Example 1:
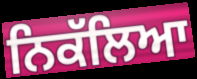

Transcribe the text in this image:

ਨਿਕੱਲਿਆ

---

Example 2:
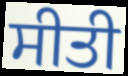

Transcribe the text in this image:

ਸੀਤੀ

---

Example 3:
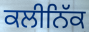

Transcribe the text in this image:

ਕਲੀਨਿੱਕ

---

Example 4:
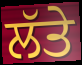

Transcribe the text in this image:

ਲੱਤੇ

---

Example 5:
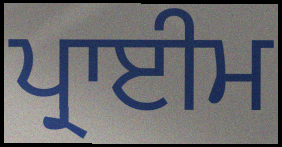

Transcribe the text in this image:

ਪ੍ਰਾਈਮ